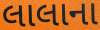
લાલાના